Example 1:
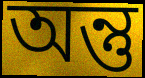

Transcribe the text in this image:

অন্তু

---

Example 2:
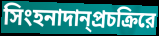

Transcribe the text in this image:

সিংহনাদান্প্রচক্রিরে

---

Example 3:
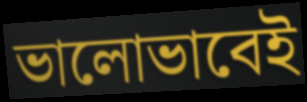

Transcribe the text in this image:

ভালোভাবেই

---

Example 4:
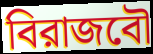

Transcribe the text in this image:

বিরাজবৌ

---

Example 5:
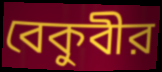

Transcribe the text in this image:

বেকুবীর